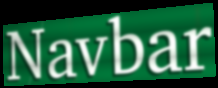
Navbar